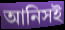
আনিসই